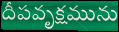
దీపవృక్షమును